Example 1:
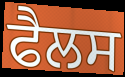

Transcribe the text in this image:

ਫੈਲਸ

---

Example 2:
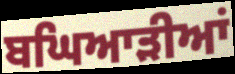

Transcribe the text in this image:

ਬਘਿਆੜੀਆਂ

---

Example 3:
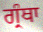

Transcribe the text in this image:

ਗ੍ਰੰਥਾ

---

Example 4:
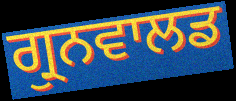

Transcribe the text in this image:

ਗ੍ਰੁਨਵਾਲਡ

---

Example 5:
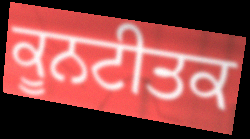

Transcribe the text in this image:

ਕੂਨਟੀਤਕ